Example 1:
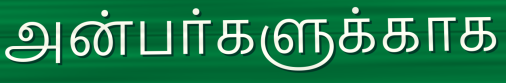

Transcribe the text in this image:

அன்பர்களுக்காக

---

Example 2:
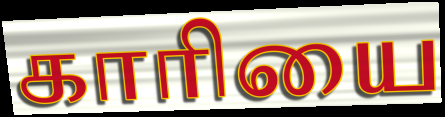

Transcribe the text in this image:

காரியை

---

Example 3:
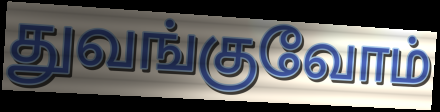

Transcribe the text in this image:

துவங்குவோம்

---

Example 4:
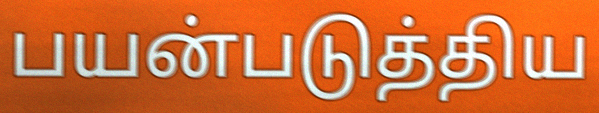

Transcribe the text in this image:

பயன்படுத்திய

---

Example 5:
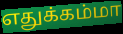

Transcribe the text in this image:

எதுக்கம்மா